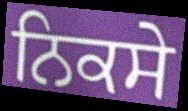
ਨਿਕਸੇ